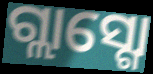
ଗ୍ଲାସ୍ଗୋ